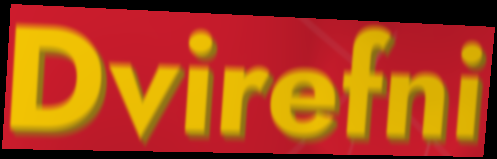
Dvirefni